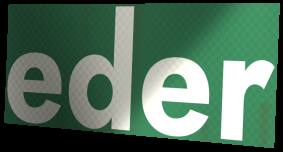
eder